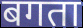
बगता